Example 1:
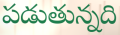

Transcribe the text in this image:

పడుతున్నది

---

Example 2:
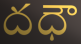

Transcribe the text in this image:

దధౌ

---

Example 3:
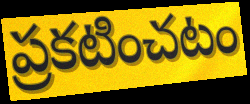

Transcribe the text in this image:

ప్రకటించటం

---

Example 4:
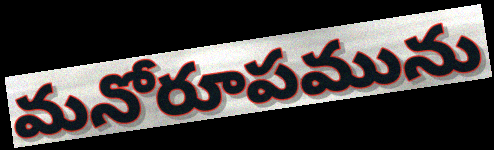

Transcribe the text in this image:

మనోరూపమును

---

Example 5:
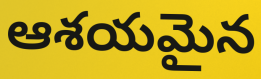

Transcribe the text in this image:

ఆశయమైన